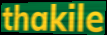
thakile